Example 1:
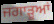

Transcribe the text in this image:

ਜਗਾੜੂਆਂ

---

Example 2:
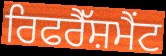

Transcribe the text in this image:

ਰਿਫਰੈੱਸ਼ਮੈਂਟ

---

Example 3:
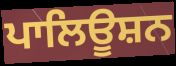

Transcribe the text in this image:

ਪਾਲਿਊਸ਼ਨ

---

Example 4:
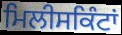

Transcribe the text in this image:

ਮਿਲੀਸਕਿੰਟਾਂ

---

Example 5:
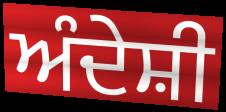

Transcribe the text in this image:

ਅੰਦੇਸ਼ੀ